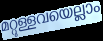
മറ്റുള്ളവയെല്ലാം